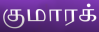
குமாரக்